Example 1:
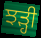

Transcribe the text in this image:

ਝੜ੍ਹੀ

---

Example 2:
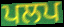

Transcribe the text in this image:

ਪਲਪ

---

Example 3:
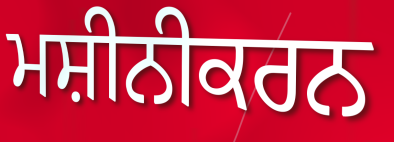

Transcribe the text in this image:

ਮਸ਼ੀਨੀਕਰਨ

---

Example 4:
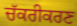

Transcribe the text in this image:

ਚੱਕਰੀਕਰਣ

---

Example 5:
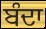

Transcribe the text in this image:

ਬੰਦਾ